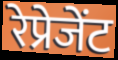
रेप्रेजेंट